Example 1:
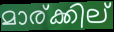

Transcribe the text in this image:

മാര്ക്കില്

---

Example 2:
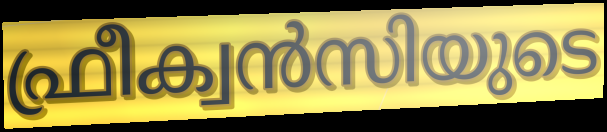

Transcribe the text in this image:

ഫ്രീക്വൻസിയുടെ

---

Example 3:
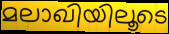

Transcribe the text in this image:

മലാഖിയിലൂടെ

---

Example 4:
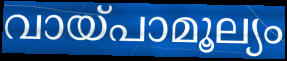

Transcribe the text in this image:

വായ്പാമൂല്യം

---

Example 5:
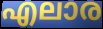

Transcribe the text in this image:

എലാര